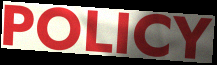
POLICY